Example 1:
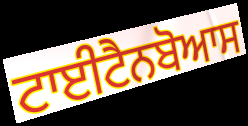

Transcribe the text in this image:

ਟਾਈਟੈਨਬੋਆਸ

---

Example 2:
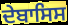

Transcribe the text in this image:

ਦੇਬਾਸਿਸ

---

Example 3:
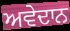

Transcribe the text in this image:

ਅਵੇਦਾਨ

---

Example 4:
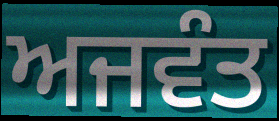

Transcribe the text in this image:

ਅਜਵੰਤ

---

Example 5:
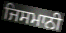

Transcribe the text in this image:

ਜਿਸਮਾਨੀ